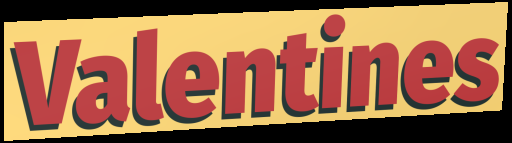
Valentines